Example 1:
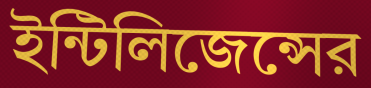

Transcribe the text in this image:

ইন্টিলিজেন্সের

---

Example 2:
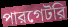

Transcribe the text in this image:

পারগেটরি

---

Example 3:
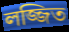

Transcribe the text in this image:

লজ্জিত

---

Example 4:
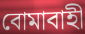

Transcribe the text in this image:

বোমাবাহী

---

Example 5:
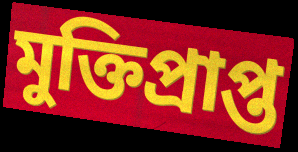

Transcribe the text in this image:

মুক্তিপ্রাপ্ত